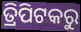
ତ୍ରିପିଟକରୁ